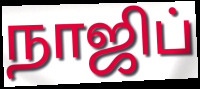
நாஜிப்